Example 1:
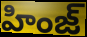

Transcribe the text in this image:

హింజ్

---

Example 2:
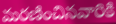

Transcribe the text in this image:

మరణించినవారికి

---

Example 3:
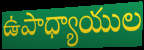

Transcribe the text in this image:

ఉపాధ్యాయుల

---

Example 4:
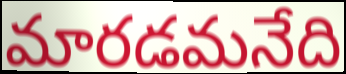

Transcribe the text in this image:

మారడమనేది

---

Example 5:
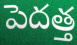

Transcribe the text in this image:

పెదత్త